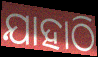
ଯାହାଠି